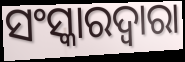
ସଂସ୍କାରଦ୍ୱାରା